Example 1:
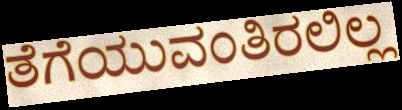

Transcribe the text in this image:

ತೆಗೆಯುವಂತಿರಲಿಲ್ಲ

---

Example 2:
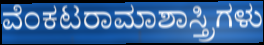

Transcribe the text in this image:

ವೆಂಕಟರಾಮಾಶಾಸ್ತ್ರಿಗಳು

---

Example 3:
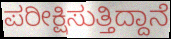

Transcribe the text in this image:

ಪರೀಕ್ಷಿಸುತ್ತಿದ್ದಾನೆ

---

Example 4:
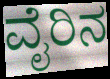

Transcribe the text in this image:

ವೈರಿನ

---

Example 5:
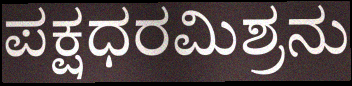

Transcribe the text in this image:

ಪಕ್ಷಧರಮಿಶ್ರನು